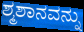
ಶ್ಮಶಾನವನ್ನು